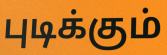
புடிக்கும்